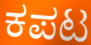
ಕಪಟ